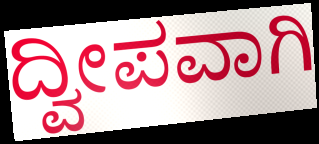
ದ್ವೀಪವಾಗಿ